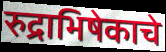
रुद्राभिषेकाचे